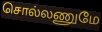
சொல்லணுமே